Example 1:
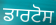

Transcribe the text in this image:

ਡਾਰਟੋਸ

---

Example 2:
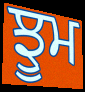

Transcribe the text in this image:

ਝੂਮ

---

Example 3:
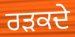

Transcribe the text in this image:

ਰੜਕਦੇ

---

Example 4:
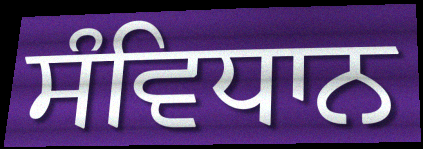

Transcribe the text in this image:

ਸੰਵਿਧਾਨ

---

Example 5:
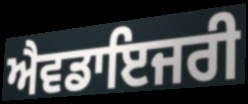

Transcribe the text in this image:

ਐਵਡਾਇਜਰੀ